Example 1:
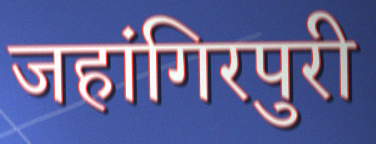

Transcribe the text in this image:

जहांगिरपुरी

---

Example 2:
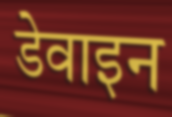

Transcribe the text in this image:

डेवाइन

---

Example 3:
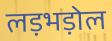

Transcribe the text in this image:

लड़भड़ोल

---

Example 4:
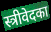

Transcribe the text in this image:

स्त्रीवेदका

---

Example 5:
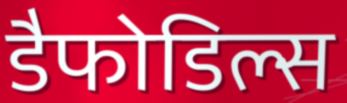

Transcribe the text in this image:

डैफोडिल्स